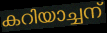
കറിയാച്ചന്